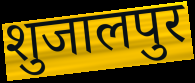
शुजालपुर